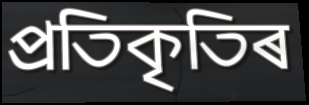
প্ৰতিকৃতিৰ